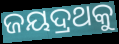
ଜୟଦ୍ରଥକୁ